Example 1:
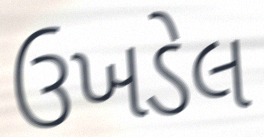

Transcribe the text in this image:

ઉખડેલ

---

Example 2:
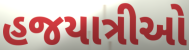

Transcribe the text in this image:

હજયાત્રીઓ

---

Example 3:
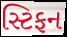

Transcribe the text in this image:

સ્ટિફન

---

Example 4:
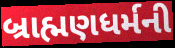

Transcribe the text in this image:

બ્રાહ્મણધર્મની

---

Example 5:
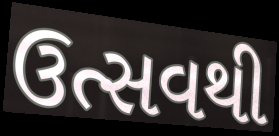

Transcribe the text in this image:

ઉત્સવથી